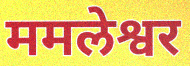
ममलेश्वर